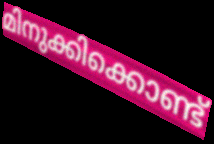
മിനുക്കിക്കൊണ്ട്